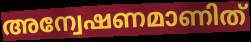
അന്വേഷണമാണിത്